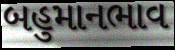
બહુમાનભાવ